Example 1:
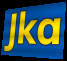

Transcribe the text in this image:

Jka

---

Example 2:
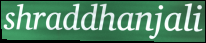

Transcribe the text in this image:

shraddhanjali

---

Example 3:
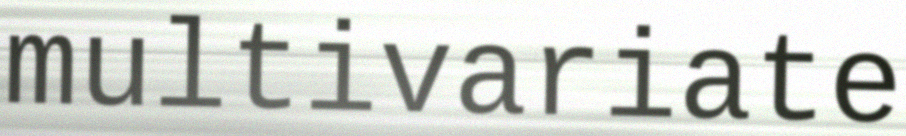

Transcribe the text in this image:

multivariate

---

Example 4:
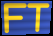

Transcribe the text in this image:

FT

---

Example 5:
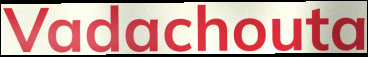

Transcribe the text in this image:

Vadachouta